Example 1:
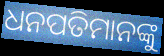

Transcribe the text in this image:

ଧନପତିମାନଙ୍କୁ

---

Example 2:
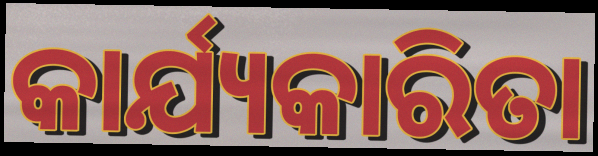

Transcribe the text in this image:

କାର୍ଯ୍ୟକାରିତା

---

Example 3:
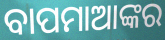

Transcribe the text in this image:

ବାପମାଆଙ୍କର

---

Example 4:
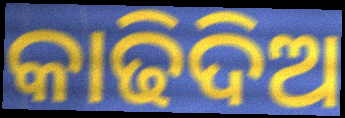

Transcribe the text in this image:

କାଢିଦିଅ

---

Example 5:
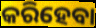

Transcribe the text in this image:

କରିହେବା